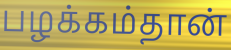
பழக்கம்தான்